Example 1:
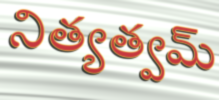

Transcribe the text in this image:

నిత్యత్వమ్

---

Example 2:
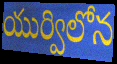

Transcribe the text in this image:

యుర్విలోన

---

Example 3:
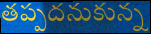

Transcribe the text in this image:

తప్పదనుకున్న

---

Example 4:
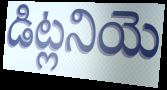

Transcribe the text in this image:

డిట్లనియె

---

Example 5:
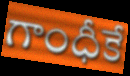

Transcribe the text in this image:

గాంధీకే